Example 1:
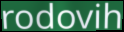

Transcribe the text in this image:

rodovih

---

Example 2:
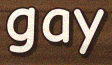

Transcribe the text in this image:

gay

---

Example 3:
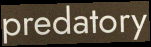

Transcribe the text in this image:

predatory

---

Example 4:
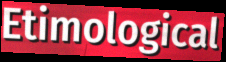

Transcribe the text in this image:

Etimological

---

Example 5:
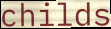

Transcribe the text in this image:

childs